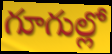
గూగుల్లో